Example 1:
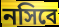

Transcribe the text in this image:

নসিবে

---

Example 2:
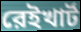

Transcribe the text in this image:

রেইখার্ট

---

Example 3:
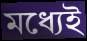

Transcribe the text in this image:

মধ্যেই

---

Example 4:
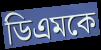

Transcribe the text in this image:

ডিএমকে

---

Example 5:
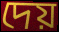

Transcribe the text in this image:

দেয়